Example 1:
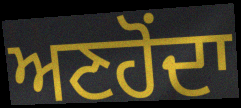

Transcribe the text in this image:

ਅਣਹੋਂਦਾ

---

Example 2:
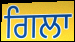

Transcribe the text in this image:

ਗਿਲਾ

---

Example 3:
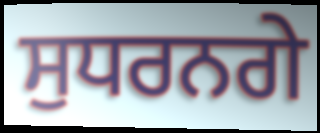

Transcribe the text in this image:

ਸੁਧਰਨਗੇ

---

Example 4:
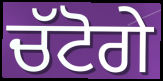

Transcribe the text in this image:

ਚੱਟੋਗੇ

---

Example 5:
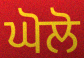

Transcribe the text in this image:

ਘੋਲੋ